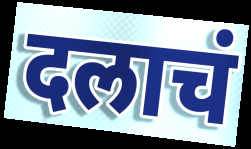
दलाचं